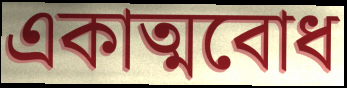
একাত্মবোধ